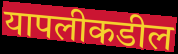
यापलीकडील